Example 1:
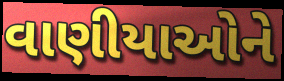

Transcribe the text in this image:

વાણીયાઓને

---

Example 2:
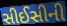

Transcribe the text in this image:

સીઈસીની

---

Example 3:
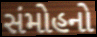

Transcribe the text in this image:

સંમોહનો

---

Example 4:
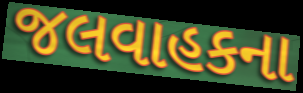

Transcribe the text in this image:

જલવાહકના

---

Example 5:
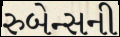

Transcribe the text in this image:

રુબેન્સની